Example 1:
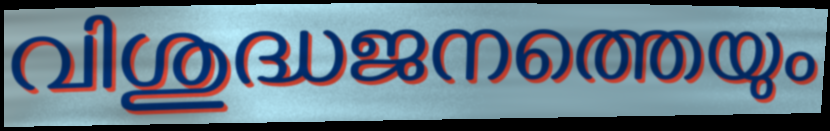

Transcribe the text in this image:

വിശുദ്ധജനത്തെയും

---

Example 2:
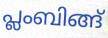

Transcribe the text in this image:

പ്ലംബിങ്ങ്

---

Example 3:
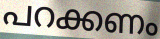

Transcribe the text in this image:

പറക്കണം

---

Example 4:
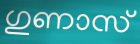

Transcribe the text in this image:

ഗുണാസ്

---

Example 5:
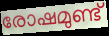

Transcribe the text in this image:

രോഷമുണ്ട്